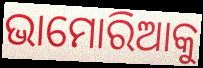
ଭାମୋରିଆକୁ